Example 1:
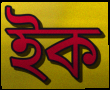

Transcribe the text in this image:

ইক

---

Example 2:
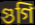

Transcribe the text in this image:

গুগি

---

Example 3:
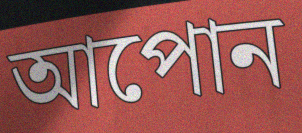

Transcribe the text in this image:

আপোন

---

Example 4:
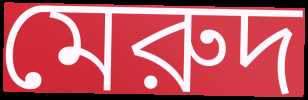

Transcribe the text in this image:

মেরুদ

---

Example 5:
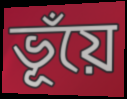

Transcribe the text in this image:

ভূঁয়ে